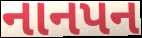
નાનપન